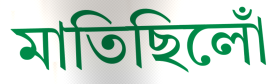
মাতিছিলোঁ